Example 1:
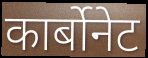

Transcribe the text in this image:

कार्बोनेट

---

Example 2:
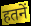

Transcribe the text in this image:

हतनें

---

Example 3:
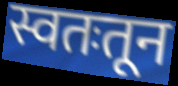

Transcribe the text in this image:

स्वतःतून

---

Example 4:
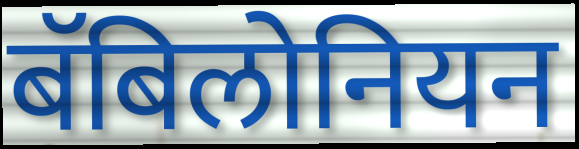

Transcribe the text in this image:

बॅबिलोनियन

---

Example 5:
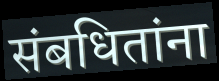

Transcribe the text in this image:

संबधितांना